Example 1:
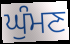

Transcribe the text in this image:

ਘੁੰਮਣ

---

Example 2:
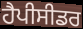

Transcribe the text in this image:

ਹੈਪੀਸੀਡਰ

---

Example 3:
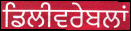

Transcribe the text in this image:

ਡਿਲੀਵਰੇਬਲਾਂ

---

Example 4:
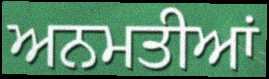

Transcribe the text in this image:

ਅਨਮਤੀਆਂ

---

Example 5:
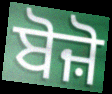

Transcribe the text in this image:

ਬੋਜ਼ੋ